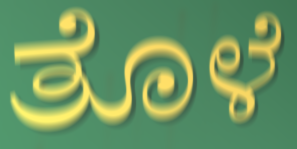
ತೊಳೆ